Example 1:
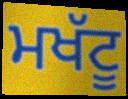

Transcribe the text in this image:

ਮਖੱਟੂ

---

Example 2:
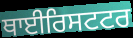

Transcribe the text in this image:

ਥਾਈਰਿਸਟਟਰ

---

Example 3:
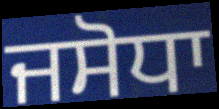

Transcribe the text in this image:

ਜਸੋਧਾ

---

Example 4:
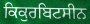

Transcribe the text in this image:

ਕਿਕੁਰਬਿਟਸੀਨ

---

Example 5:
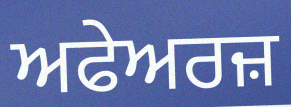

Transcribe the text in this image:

ਅਫੇਅਰਜ਼